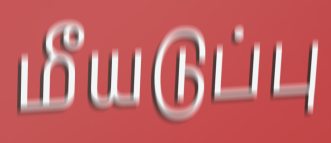
மீயடுப்பு